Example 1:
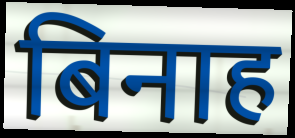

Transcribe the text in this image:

बिनाह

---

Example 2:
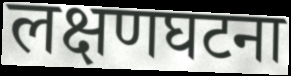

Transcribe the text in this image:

लक्षणघटना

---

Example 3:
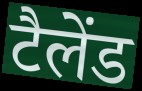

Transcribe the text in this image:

टैलेंड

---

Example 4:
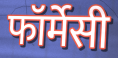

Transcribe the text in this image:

फॉर्मेसी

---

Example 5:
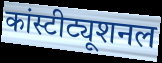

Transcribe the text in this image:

कांस्टीट्यूशनल